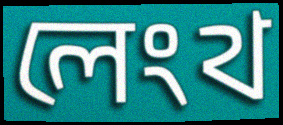
লেংথ